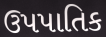
ઉપપાતિક